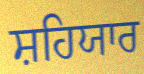
ਸ਼ਹਿਯਾਰ